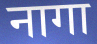
नागा